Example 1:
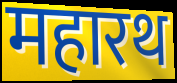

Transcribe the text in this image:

महारथ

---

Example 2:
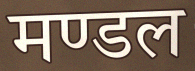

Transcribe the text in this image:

मण्डल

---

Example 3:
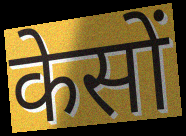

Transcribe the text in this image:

केसों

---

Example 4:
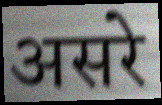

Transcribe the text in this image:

असरे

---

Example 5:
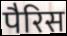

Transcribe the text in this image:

पैरिस